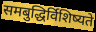
समबुद्धिर्विशिष्यते